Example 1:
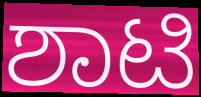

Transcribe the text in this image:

ಶಾಟಿ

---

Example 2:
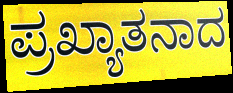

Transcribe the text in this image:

ಪ್ರಖ್ಯಾತನಾದ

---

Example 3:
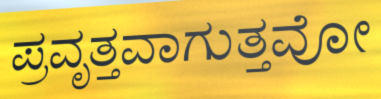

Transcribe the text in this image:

ಪ್ರವೃತ್ತವಾಗುತ್ತವೋ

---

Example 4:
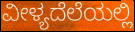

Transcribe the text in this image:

ವೀಳ್ಯದೆಲೆಯಲ್ಲಿ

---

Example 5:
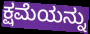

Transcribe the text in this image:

ಕ್ಷಮೆಯನ್ನು